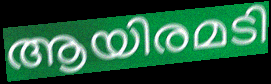
ആയിരമടി